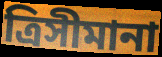
ত্রিসীমানা